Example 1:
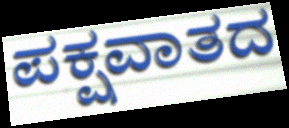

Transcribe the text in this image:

ಪಕ್ಷವಾತದ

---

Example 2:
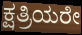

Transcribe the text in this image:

ಕ್ಷತ್ರಿಯರೇ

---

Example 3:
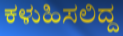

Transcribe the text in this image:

ಕಳುಹಿಸಲಿದ್ದ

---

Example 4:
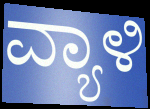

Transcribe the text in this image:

ವ್ಯಾಳಿ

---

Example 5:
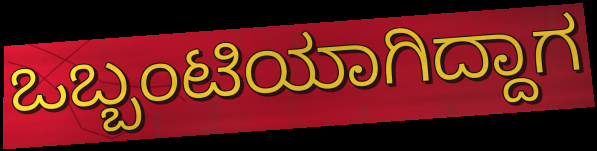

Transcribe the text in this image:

ಒಬ್ಬಂಟಿಯಾಗಿದ್ದಾಗ